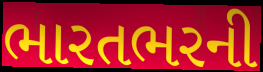
ભારતભરની